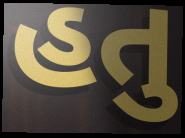
હતુ